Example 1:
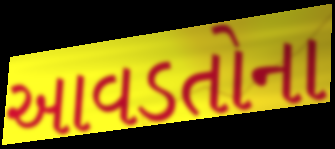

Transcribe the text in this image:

આવડતોના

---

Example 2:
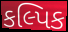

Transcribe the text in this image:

કલ્પિક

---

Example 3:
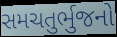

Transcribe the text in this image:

સમચતુર્ભુજનો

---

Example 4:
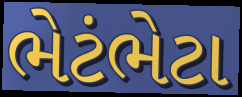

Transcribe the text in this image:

ભેટંભેટા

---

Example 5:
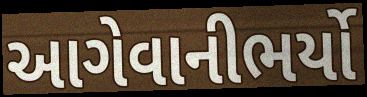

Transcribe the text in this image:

આગેવાનીભર્યો